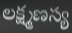
లక్ష్మణస్య